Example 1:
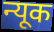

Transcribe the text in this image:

न्यूक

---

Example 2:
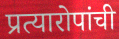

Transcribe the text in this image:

प्रत्यारोपांची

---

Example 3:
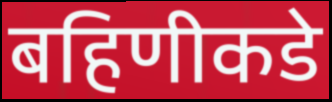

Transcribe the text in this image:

बहिणीकडे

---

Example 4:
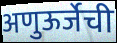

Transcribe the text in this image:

अणुऊर्जेची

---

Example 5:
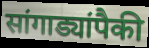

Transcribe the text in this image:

सांगाड्यांपैकी